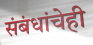
संबंधांचेही